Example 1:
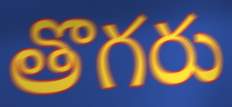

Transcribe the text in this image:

తొగరు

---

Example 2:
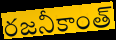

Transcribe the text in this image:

రజనీకాంత్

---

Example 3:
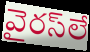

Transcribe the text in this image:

వైరస్‌లే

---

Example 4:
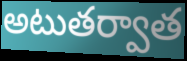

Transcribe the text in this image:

అటుతర్వాత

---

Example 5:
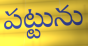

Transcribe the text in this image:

పట్టును